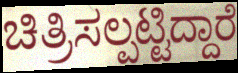
ಚಿತ್ರಿಸಲ್ಪಟ್ಟಿದ್ದಾರೆ